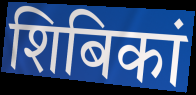
शिबिकां